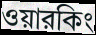
ওয়ারকিং